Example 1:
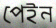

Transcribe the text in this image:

পেইন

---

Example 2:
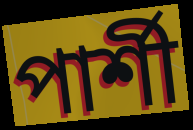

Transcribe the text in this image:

পার্শী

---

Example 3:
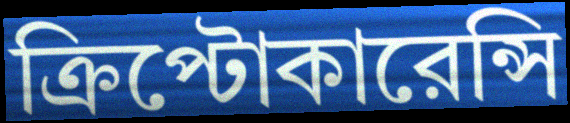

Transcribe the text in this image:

ক্রিপ্টোকারেন্সি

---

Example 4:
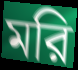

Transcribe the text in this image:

মরি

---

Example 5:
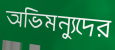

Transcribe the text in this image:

অভিমন্যুদের